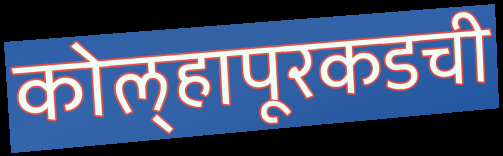
कोल्हापूरकडची